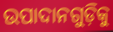
ଉପାଦାନଗୁଡ଼ିକୁ